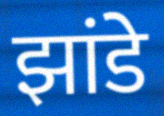
झांडे